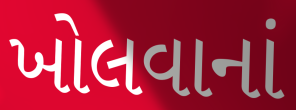
ખોલવાનાં